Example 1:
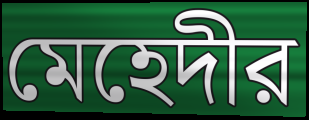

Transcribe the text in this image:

মেহেদীর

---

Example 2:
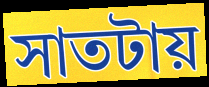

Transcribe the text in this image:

সাতটায়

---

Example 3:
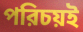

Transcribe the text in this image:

পরিচয়ই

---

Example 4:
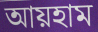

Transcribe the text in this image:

আয়হাম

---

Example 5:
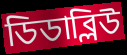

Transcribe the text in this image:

ডিডাব্লিউ